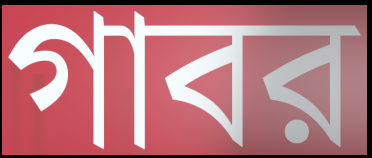
গাবর